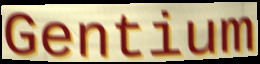
Gentium